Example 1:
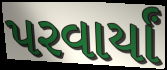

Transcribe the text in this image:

પરવાર્યાં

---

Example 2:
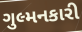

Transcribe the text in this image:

ગુલ્મનકારી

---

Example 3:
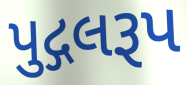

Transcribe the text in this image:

પુદ્ગલરૂપ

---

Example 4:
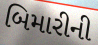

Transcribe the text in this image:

બિમારીની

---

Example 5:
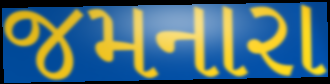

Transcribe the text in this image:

જમનારા